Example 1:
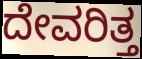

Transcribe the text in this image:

ದೇವರಿತ್ತ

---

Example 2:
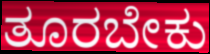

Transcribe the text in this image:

ತೂರಬೇಕು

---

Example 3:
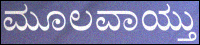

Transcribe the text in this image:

ಮೂಲವಾಯ್ತು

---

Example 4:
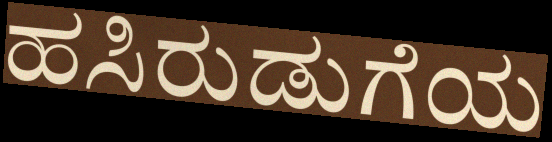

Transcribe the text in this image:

ಹಸಿರುಡುಗೆಯ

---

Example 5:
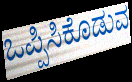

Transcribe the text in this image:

ಒಪ್ಪಿಸಿಕೊಡುವ